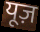
यूज़